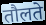
तौलते